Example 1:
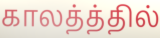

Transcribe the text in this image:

காலத்த்தில்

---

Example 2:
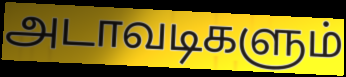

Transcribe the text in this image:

அடாவடிகளும்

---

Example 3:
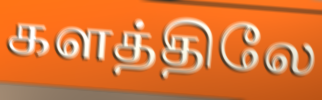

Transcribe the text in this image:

களத்திலே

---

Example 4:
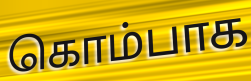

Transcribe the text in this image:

கொம்பாக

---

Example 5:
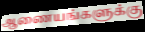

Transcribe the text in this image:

ஆணையங்களுக்கு